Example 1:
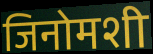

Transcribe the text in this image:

जिनोमशी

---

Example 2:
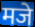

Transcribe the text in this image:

मजे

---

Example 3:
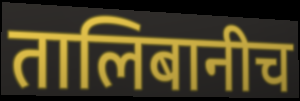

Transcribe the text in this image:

तालिबानीच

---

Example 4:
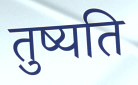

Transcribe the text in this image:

तुष्यति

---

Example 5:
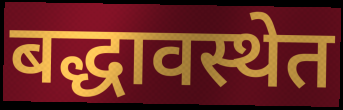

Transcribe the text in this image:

बद्धावस्थेत